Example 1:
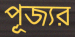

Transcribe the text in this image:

পূজ্যর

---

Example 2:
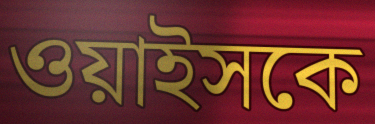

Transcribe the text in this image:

ওয়াইসকে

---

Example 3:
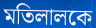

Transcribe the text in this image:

মতিলালকে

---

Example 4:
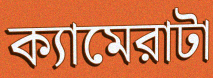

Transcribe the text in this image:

ক্যামেরাটা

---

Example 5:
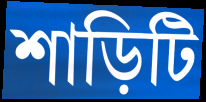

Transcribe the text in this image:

শাড়িটি